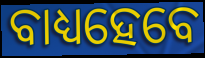
ବାଧ୍ୟହେବେ